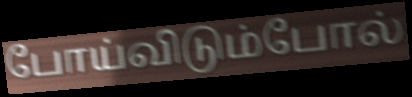
போய்விடும்போல்